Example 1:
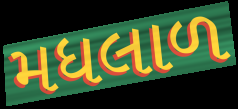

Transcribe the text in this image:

મધલાળ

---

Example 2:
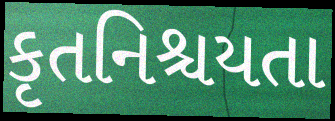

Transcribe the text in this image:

કૃતનિશ્ચયતા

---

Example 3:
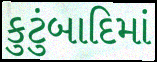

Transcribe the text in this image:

કુટુંબાદિમાં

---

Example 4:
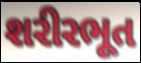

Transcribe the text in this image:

શરીરભૂત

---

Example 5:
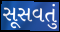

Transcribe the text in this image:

સૂસવતું